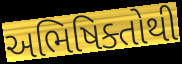
અભિષિક્તોથી